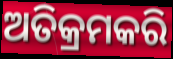
ଅତିକ୍ରମକରି